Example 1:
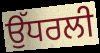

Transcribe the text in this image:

ਉੱਧਰਲੀ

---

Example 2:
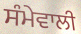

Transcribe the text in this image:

ਸੰਮੇਵਾਲੀ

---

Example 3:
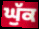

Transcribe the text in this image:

ਘੁੱਕ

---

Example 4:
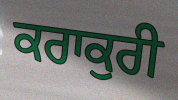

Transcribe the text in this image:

ਕਰਾਕੁਰੀ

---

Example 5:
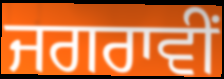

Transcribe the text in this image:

ਜਗਰਾਵੀਂ